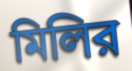
মিলির